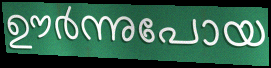
ഊർന്നുപോയ